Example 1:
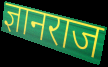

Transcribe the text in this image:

ज्ञानराज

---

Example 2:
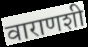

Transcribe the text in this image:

वाराणशी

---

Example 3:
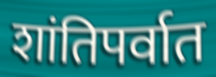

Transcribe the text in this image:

शांतिपर्वात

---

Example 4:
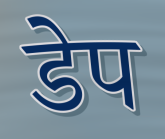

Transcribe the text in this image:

डेप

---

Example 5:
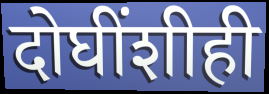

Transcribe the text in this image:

दोघींशीही